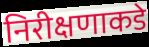
निरीक्षणाकडे